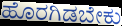
ಹೊರಗಿಡಬೇಕು